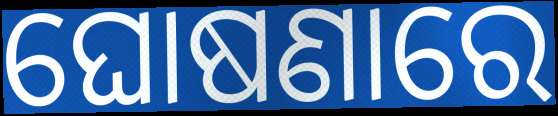
ଘୋଷଣାରେ